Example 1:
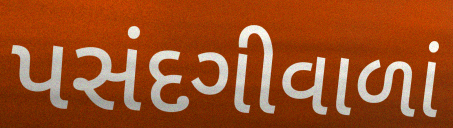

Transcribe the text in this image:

પસંદગીવાળાં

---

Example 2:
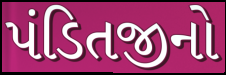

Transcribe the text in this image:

પંડિતજીનો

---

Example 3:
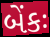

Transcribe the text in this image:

બેંકઃ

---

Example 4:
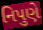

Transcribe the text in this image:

નિપુણે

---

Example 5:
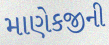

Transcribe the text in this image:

માણેકજીની